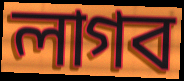
লাগব